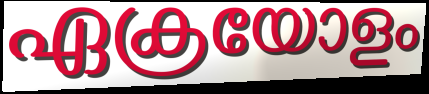
ഏക്രയോളം